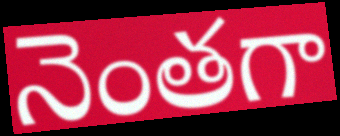
నెంతగా